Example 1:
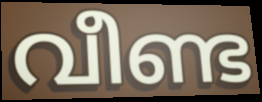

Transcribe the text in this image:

വീണ്ട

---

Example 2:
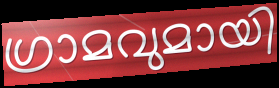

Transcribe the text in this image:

ഗ്രാമവുമായി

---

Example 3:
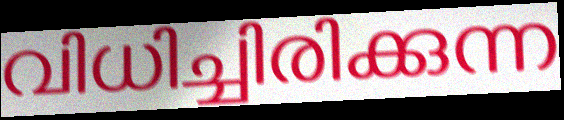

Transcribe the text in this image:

വിധിച്ചിരിക്കുന്ന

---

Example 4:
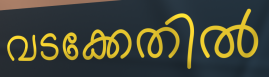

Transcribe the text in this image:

വടക്കേതിൽ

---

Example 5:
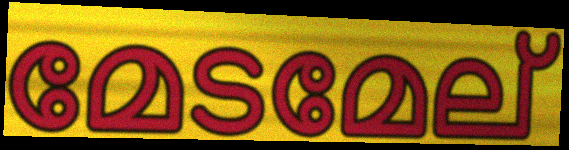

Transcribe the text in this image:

മേടമേല്